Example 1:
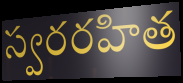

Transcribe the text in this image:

స్వరరహిత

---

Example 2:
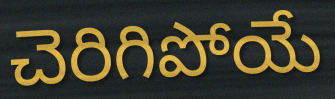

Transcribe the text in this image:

చెరిగిపోయే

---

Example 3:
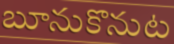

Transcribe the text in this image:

బూనుకొనుట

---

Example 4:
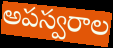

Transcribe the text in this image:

అపస్వరాల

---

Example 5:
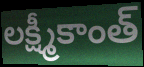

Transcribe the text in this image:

లక్ష్మీకాంత్